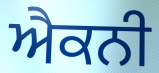
ਐਕਨੀ